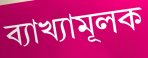
ব্যাখ্যামূলক